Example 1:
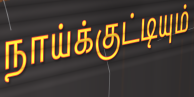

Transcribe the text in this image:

நாய்க்குட்டியும்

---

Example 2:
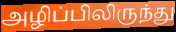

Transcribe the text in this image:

அழிப்பிலிருந்து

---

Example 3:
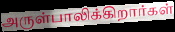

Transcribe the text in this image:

அருள்பாலிக்கிறார்கள்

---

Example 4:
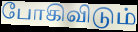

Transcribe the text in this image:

போகிவிடும்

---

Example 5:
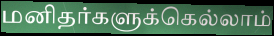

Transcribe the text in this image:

மனிதர்களுக்கெல்லாம்